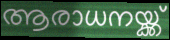
ആരാധനയ്ക്ക്